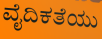
ವೈದಿಕತೆಯು